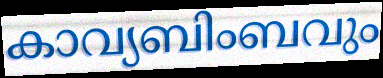
കാവ്യബിംബവും